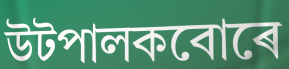
উটপালকবোৰে